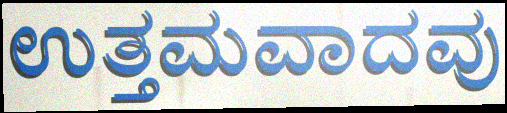
ಉತ್ತಮವಾದವು